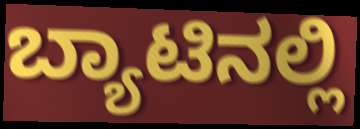
ಬ್ಯಾಟಿನಲ್ಲಿ